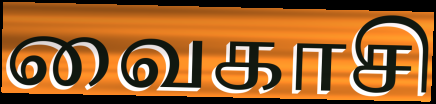
வைகாசி